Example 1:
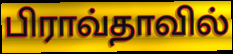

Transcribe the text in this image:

பிராவ்தாவில்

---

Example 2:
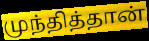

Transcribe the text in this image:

முந்தித்தான்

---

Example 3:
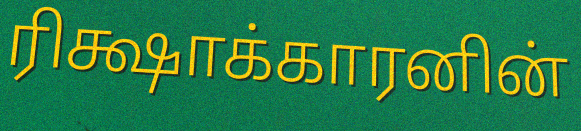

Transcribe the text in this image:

ரிக்ஷாக்காரனின்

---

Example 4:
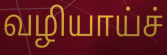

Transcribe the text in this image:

வழியாய்ச்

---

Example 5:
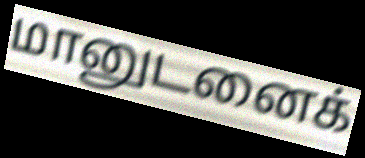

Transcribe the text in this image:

மானுடனைக்